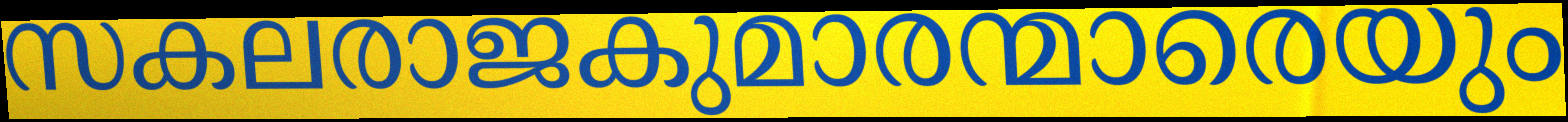
സകലരാജകുമാരന്മാരെയും